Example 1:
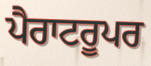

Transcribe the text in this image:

ਪੈਰਾਟਰੂਪਰ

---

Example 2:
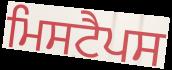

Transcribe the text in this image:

ਮਿਸਟੈਪਸ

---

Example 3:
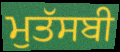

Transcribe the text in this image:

ਮੁਤੱਸਬੀ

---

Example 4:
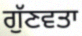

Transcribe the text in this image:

ਗੁੱਣਵਤਾ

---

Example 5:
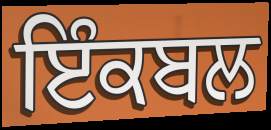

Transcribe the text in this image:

ਇੰਕਬਲ